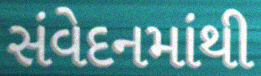
સંવેદનમાંથી